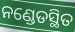
ନଣ୍ଡେଡସ୍ଥିତ